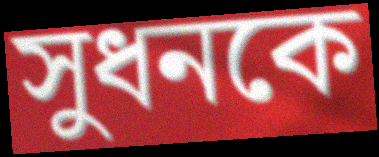
সুধনকে